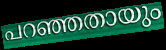
പറഞ്ഞതായും